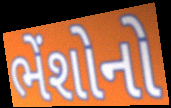
ભેંશોનો